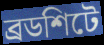
ব্রডশিটে